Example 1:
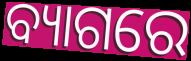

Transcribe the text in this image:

ବ୍ୟାଗରେ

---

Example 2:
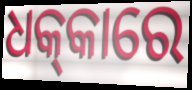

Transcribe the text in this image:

ଧକ୍‌କାରେ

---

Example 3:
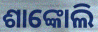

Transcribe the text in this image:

ଶାଙ୍କୋଲି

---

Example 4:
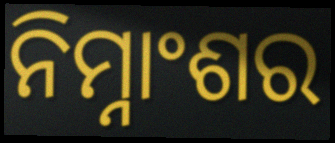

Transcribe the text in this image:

ନିମ୍ନାଂଶର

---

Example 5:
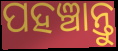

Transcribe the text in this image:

ପହଞ୍ଚାନ୍ତୁ